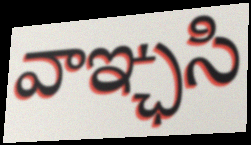
వాఞ్ఛసి